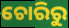
ଚୋରିରୁ